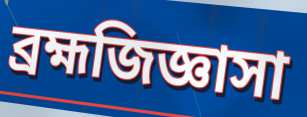
ব্রহ্মজিজ্ঞাসা